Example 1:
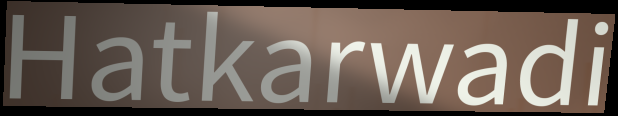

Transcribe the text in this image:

Hatkarwadi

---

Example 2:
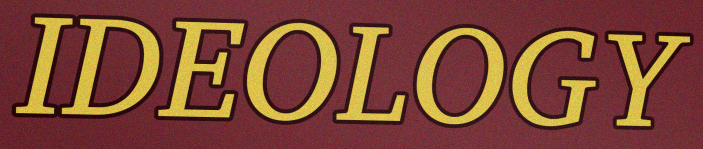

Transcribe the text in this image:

IDEOLOGY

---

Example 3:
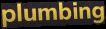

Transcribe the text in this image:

plumbing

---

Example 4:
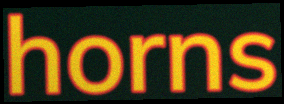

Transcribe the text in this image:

horns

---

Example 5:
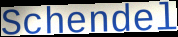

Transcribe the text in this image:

Schendel